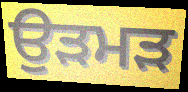
ਉੜਮੜ